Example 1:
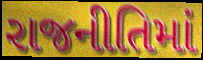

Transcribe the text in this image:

રાજનીતિમાં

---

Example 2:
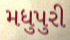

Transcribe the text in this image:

મધુપુરી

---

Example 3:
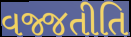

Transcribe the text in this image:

વજ્જતીતિ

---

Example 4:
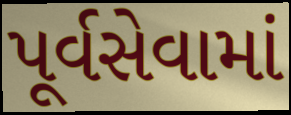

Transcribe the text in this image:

પૂર્વસેવામાં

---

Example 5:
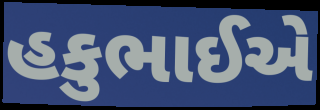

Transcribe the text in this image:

હકુભાઈએ